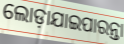
ଲୋଡ଼ାଯାଇପାରନ୍ତା